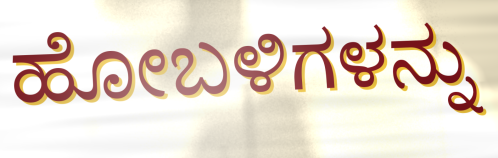
ಹೋಬಳಿಗಳನ್ನು